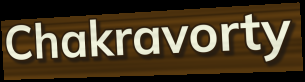
Chakravorty